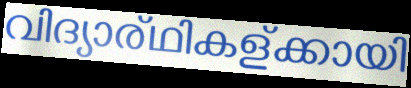
വിദ്യാര്ഥികള്ക്കായി